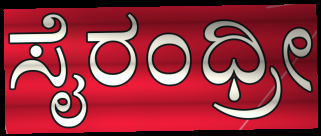
ಸೈರಂಧ್ರೀ